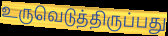
உருவெடுத்திருப்பது